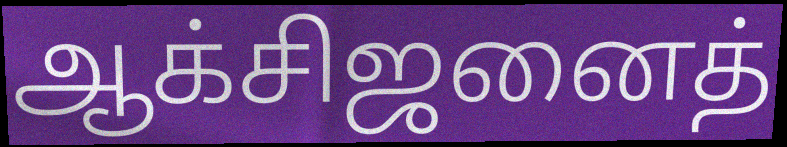
ஆக்சிஜனைத்